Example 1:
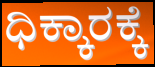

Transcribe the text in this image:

ಧಿಕ್ಕಾರಕ್ಕೆ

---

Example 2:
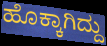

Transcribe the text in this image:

ಹೊಕ್ಕಾಗಿದ್ದು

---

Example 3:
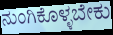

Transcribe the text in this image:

ನುಂಗಿಕೊಳ್ಳಬೇಕು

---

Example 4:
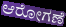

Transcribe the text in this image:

ಆರೋಗಣೆ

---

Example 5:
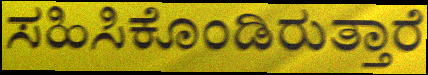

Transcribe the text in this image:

ಸಹಿಸಿಕೊಂಡಿರುತ್ತಾರೆ